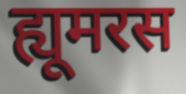
ह्यूमरस